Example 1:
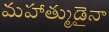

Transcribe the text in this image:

మహాత్ముడైనా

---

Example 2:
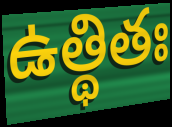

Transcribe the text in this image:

ఉత్థితః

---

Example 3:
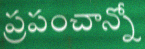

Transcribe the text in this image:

ప్రపంచాన్నో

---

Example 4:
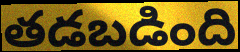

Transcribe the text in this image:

తడబడింది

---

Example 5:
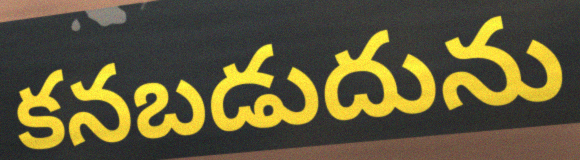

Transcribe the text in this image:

కనబడుదును